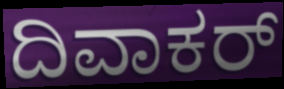
ದಿವಾಕರ್